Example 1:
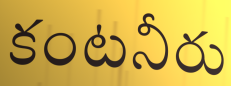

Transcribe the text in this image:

కంటనీరు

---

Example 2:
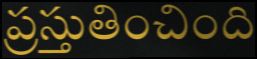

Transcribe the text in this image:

ప్రస్తుతించింది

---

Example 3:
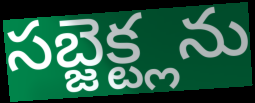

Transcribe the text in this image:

సబ్జెక్ట్లను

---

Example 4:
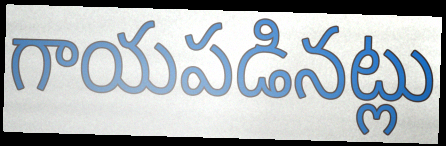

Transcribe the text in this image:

గాయపడినట్లు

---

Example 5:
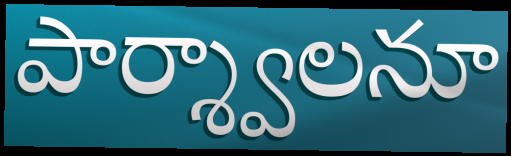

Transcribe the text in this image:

పార్శ్వాలనూ